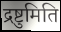
द्रष्टुमिति